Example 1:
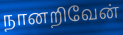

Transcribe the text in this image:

நானறிவேன்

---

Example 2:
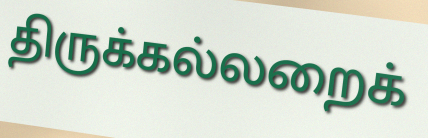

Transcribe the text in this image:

திருக்கல்லறைக்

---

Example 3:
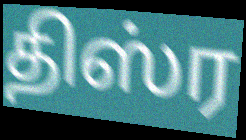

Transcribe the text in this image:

திஸ்ர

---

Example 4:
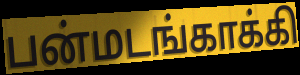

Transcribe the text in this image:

பன்மடங்காக்கி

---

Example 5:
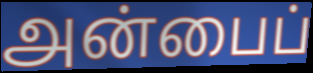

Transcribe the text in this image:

அன்பைப்